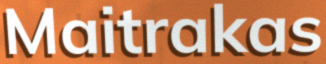
Maitrakas